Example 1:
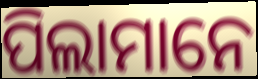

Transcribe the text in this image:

ପିଲାମାନେ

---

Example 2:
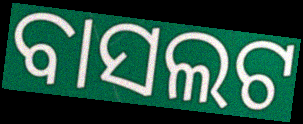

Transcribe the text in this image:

ବାସଲଟ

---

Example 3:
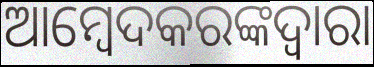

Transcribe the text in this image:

ଆମ୍ବେଦକରଙ୍କଦ୍ୱାରା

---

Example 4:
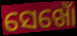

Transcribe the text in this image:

ସେଖୋଁ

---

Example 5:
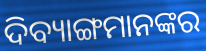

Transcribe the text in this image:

ଦିବ୍ୟାଙ୍ଗମାନଙ୍କର